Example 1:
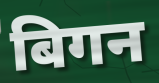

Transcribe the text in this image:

बिगन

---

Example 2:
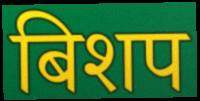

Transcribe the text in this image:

बिशप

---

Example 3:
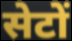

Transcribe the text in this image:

सेटों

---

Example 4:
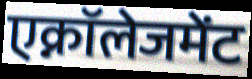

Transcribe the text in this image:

एक्नॉलेजमेंट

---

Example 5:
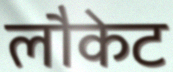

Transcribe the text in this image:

लौकेट